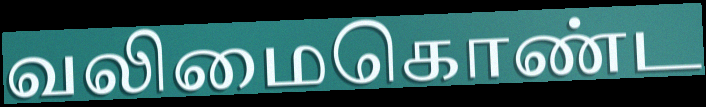
வலிமைகொண்ட